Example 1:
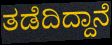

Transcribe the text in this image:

ತಡೆದಿದ್ದಾನೆ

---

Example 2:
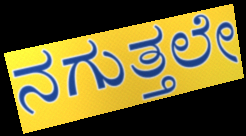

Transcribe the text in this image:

ನಗುತ್ತಲೇ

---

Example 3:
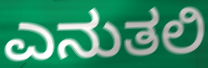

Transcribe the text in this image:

ಎನುತಲಿ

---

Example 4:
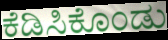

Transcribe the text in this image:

ಕೆಡಿಸಿಕೊಂಡು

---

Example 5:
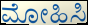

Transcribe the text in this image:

ಮೋಹಿಸಿ